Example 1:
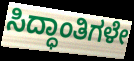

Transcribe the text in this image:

ಸಿದ್ಧಾಂತಿಗಳೇ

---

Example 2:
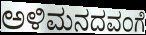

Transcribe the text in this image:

ಅಳಿಮನದವಂಗೆ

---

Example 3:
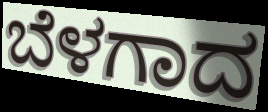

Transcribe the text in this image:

ಬೆಳಗಾದ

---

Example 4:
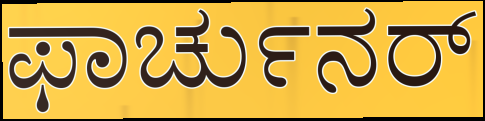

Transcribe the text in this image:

ಫಾರ್ಚುನರ್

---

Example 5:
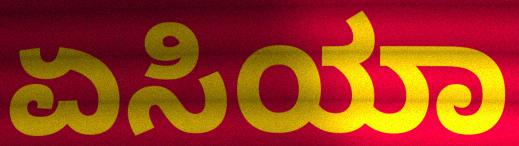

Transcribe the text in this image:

ಏಸಿಯಾ